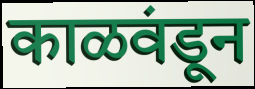
काळवंडून